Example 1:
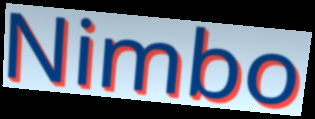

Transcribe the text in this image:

Nimbo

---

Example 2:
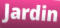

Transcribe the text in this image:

Jardin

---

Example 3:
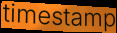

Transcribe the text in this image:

timestamp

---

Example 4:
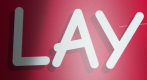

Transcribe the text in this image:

LAY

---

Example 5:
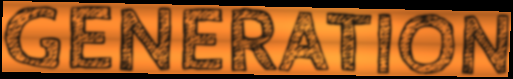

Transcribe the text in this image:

GENERATION